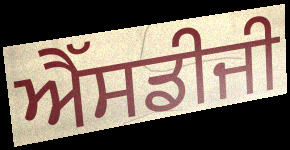
ਐੱਸਡੀਜੀ